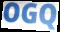
OGQ